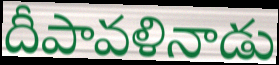
దీపావళినాడు